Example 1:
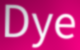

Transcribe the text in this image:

Dye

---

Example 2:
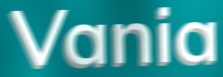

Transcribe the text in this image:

Vania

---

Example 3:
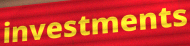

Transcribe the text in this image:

investments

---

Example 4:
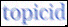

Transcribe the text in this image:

topicid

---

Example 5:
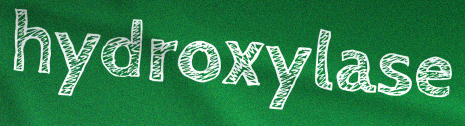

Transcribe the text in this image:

hydroxylase